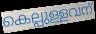
കെല്പുള്ളവന്